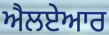
ਐਲਏਆਰ